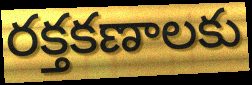
రక్తకణాలకు